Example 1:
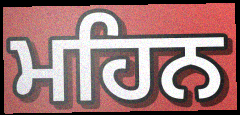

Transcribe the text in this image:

ਮਹਿਨ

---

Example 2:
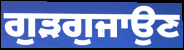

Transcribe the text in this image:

ਗੁੜਗੁਜਾਉਣ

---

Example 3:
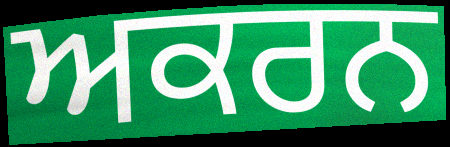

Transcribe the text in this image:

ਅਕਰਨ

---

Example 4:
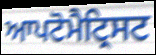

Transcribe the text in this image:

ਆਪਟੋਮੈਟ੍ਰਿਸਟ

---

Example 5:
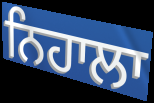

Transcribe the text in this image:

ਨਿਹਾਲਾ